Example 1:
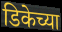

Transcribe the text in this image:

डिकेच्या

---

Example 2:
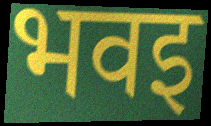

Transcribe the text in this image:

भवइ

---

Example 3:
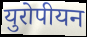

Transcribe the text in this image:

युरोपीयन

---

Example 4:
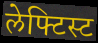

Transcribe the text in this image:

लेफ्टिस्ट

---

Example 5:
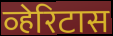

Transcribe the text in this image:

व्हेरिटास